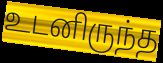
உடனிருந்த